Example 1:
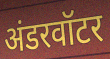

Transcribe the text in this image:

अंडरवॉटर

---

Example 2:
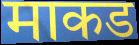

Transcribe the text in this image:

माकड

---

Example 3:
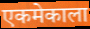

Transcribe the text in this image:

एकमेकाला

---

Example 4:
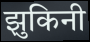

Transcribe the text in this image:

झुकिनी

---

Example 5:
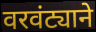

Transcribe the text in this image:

वरवंट्याने